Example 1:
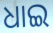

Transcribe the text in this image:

ଧାଇ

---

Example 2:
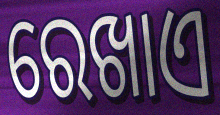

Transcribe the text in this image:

ରେଖାଏ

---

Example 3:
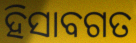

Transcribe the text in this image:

ହିସାବଗତ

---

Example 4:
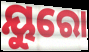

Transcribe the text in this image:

ୟୁରୋ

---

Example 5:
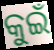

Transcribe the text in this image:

କୁଇଁ